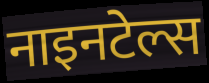
नाइनटेल्स